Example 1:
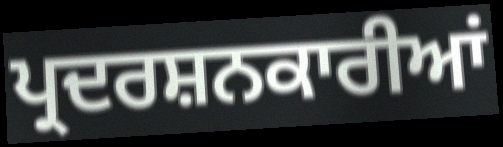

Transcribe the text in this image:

ਪ੍ਰਦਰਸ਼ਨਕਾਰੀਆਂ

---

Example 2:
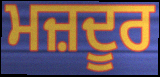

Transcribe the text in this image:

ਮਜ਼ਦੂਰ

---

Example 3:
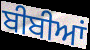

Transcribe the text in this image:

ਬੀਬੀਆਂ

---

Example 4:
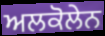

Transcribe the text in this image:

ਅਲਕੋਲੇਨ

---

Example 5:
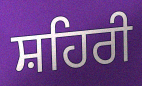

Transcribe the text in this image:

ਸ਼ਹਿਰੀ